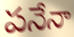
పనేనా